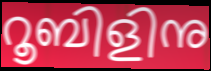
റൂബിളിനു